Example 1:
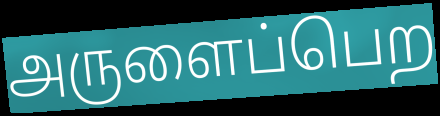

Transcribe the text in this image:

அருளைப்பெற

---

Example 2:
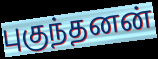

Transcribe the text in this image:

புகுந்தனன்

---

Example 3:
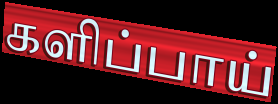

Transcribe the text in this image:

களிப்பாய்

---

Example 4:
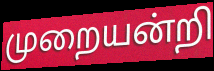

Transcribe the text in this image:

முறையன்றி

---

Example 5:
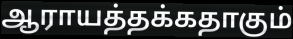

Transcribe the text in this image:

ஆராயத்தக்கதாகும்